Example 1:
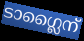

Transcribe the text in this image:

ടാഗ്ലൈന്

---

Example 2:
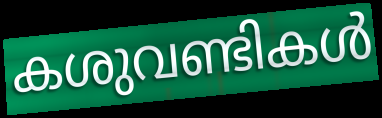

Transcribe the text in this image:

കശുവണ്ടികൾ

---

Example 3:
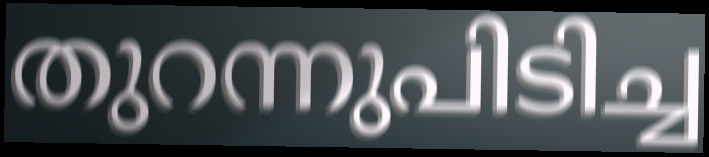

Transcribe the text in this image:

തുറന്നുപിടിച്ച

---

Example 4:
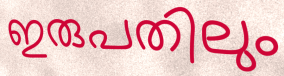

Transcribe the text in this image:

ഇരുപതിലും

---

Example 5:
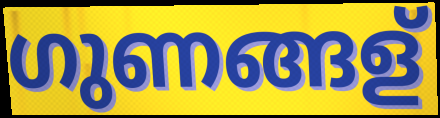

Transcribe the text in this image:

ഗുണങ്ങള്